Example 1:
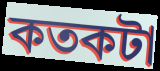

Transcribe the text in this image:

কতকটা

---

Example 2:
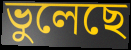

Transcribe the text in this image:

ভুলেছে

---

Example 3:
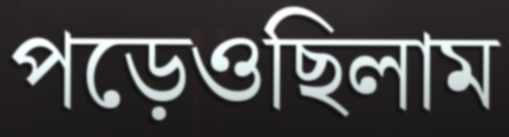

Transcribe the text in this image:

পড়েওছিলাম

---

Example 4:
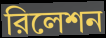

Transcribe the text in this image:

রিলেশন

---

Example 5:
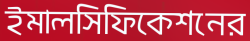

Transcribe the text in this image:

ইমালসিফিকেশনের